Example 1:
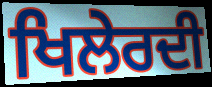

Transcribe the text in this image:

ਖਿਲੇਰਦੀ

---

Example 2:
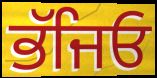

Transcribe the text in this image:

ਭੱਜਿਓ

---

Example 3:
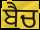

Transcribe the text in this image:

ਬੈਚ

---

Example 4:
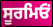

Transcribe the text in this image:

ਸੂਰਮਿਓਂ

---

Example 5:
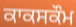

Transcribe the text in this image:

ਕਾਕਸਕੌਮ